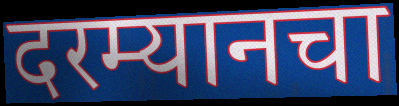
दरम्यानचा